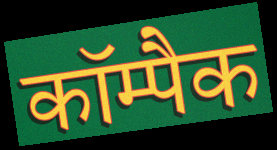
कॉम्पैक